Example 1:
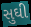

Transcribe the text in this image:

સુઘી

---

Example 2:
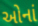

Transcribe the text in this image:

ઓનાં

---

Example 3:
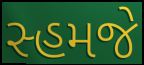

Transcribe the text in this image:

સ્હમજે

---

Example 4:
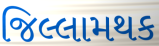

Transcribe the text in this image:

જિલ્લામથક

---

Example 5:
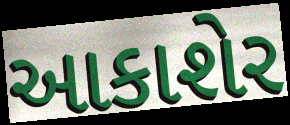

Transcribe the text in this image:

આકાશેર